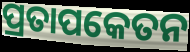
ପ୍ରତାପକେତନ